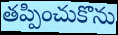
తప్పించుకొను